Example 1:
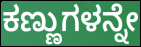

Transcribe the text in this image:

ಕಣ್ಣುಗಳನ್ನೇ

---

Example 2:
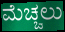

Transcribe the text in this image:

ಮೆಚ್ಚಲು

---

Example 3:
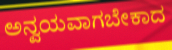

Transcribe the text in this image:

ಅನ್ವಯವಾಗಬೇಕಾದ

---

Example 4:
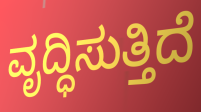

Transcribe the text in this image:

ವೃದ್ಧಿಸುತ್ತಿದೆ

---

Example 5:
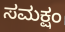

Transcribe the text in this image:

ಸಮಕ್ಷಂ